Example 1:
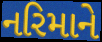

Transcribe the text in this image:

નરિમાને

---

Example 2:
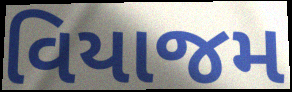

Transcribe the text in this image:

વિયાજમ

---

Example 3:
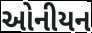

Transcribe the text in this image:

ઓનીયન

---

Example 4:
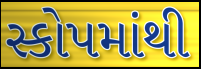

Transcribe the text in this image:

સ્કોપમાંથી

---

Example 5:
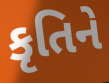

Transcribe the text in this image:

કૃતિને